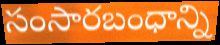
సంసారబంధాన్ని